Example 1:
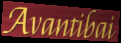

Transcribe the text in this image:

Avantibai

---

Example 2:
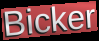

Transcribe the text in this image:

Bicker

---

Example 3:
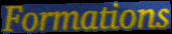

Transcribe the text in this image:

Formations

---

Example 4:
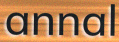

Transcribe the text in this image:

annal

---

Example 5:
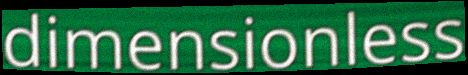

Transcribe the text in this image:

dimensionless